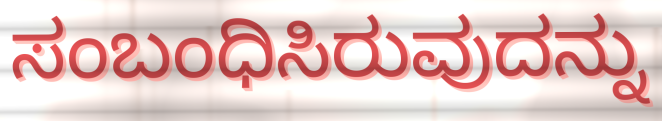
ಸಂಬಂಧಿಸಿರುವುದನ್ನು